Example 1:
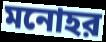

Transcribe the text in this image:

মনোহর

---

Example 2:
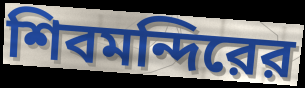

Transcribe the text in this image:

শিবমন্দিরের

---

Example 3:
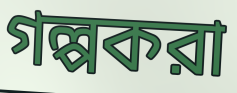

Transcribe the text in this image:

গল্পকরা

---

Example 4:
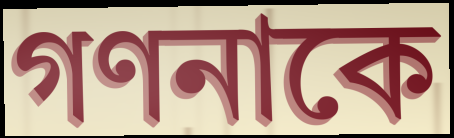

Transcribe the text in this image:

গণনাকে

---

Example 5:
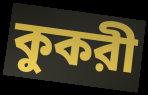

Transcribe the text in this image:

কুকরী